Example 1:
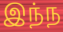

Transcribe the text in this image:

இந்ந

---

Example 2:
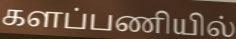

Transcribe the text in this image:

களப்பணியில்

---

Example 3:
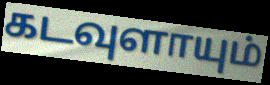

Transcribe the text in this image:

கடவுளாயும்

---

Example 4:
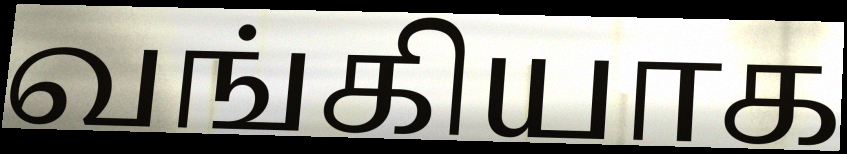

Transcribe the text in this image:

வங்கியாக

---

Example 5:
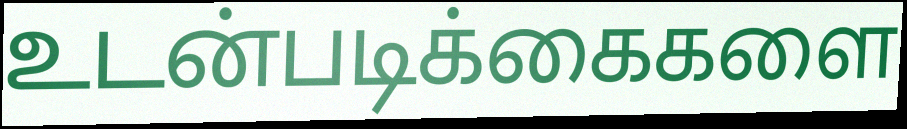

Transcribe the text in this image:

உடன்படிக்கைகளை